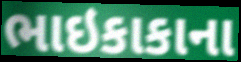
ભાઇકાકાના